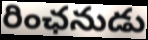
రింఛనుడు